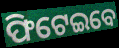
ଫିଟେଇବେ